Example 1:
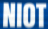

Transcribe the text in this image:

NIOT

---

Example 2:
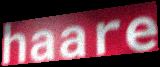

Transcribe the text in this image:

haare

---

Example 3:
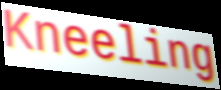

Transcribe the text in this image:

Kneeling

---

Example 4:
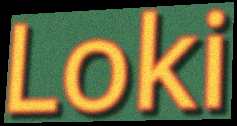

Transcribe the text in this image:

Loki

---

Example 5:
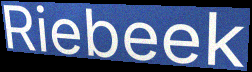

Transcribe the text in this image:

Riebeek